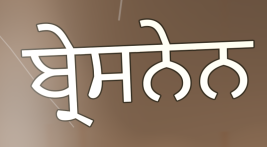
ਬ੍ਰੇਸਨੇਨ